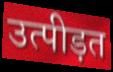
उत्पीड़त